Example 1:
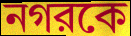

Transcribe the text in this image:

নগরকে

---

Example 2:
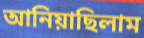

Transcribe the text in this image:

আনিয়াছিলাম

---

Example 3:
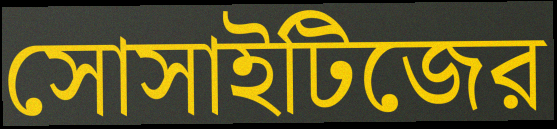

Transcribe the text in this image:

সোসাইটিজের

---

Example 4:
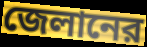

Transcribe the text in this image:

জেলানের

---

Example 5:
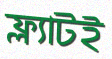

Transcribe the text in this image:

ফ্ল্যাটই